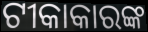
ଟୀକାକାରଙ୍କ